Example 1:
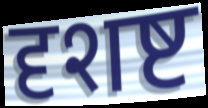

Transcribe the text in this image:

दृशष्ट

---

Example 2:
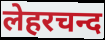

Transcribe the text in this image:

लेहरचन्द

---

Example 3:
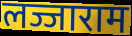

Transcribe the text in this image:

लज्जाराम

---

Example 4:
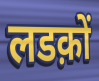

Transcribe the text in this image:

लडक़ों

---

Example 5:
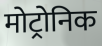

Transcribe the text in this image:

मोट्रोनिक